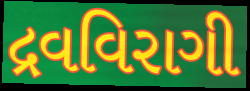
દ્રવવિરાગી